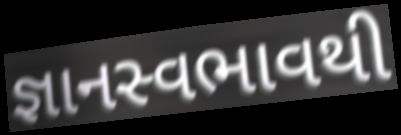
જ્ઞાનસ્વભાવથી